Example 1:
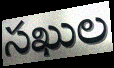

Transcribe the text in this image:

సఖుల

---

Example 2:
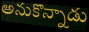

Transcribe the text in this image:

అనుకొన్నాడు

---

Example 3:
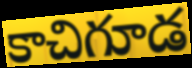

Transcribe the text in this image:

కాచిగూడ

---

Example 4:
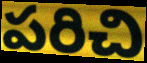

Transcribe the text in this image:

పరిచి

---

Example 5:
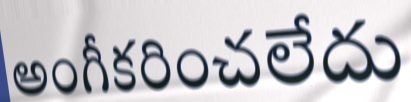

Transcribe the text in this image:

అంగీకరించలేదు